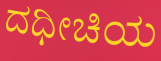
ದಧೀಚಿಯ